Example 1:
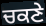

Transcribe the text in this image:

ਚਕਣੇ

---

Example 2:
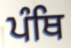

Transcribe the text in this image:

ਪੰਥਿ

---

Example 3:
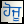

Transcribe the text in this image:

ਹੋਜੂ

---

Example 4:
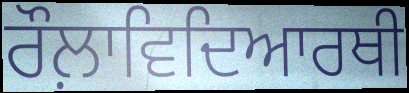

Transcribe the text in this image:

ਰੌਲ਼ਾਵਿਦਿਆਰਥੀ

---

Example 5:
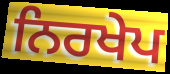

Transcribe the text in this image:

ਨਿਰਖੇਪ